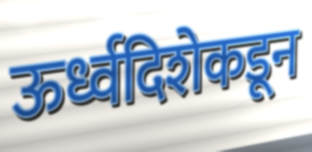
ऊर्ध्वदिशेकडून